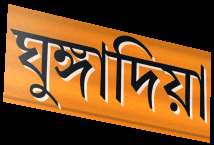
ঘুঙ্গাদিয়া